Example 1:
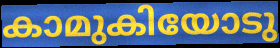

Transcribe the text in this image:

കാമുകിയോടു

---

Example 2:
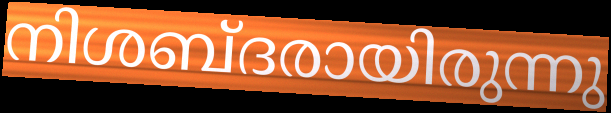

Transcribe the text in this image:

നിശബ്ദരായിരുന്നു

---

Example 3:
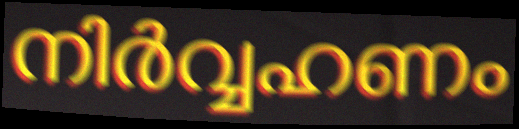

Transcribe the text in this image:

നിർവ്വഹണം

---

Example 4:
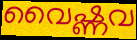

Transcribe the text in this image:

വൈഷ്ണവ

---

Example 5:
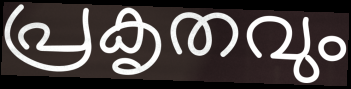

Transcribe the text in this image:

പ്രകൃതവും